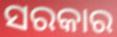
ସରକାର